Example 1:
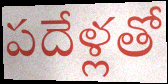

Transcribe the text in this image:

పదేళ్లతో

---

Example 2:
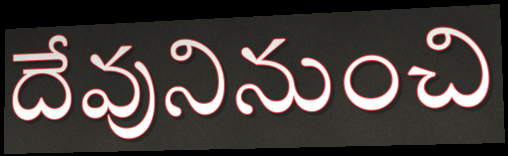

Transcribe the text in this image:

దేవునినుంచి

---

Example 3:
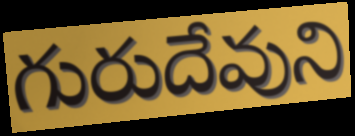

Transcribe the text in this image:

గురుదేవుని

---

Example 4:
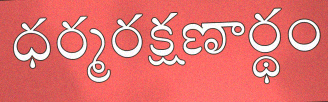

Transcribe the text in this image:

ధర్మరక్షణార్థం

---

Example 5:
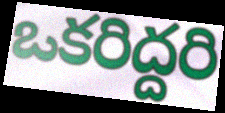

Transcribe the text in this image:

ఒకరిద్దరి